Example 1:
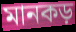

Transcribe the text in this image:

মানকড়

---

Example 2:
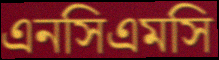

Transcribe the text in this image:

এনসিএমসি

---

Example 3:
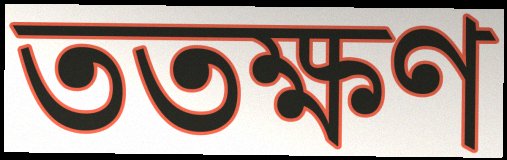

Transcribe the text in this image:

ততক্ষণ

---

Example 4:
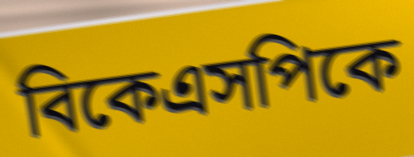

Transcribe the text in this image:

বিকেএসপিকে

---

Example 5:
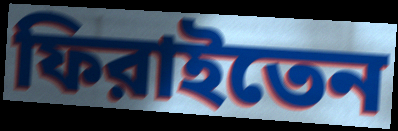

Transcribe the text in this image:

ফিরাইতেন